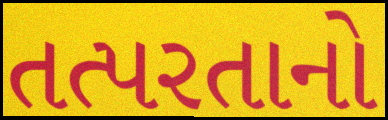
તત્પરતાનો